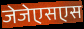
जेजेएसएस